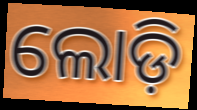
ଲୋଡ଼ି